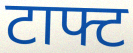
टाफ्ट